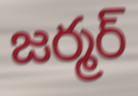
జర్మర్